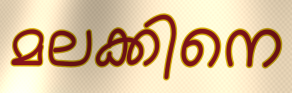
മലക്കിനെ